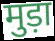
मुड़ा